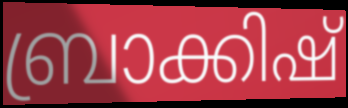
ബ്രാക്കിഷ്